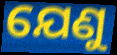
ଯେଣୁ